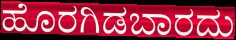
ಹೊರಗಿಡಬಾರದು